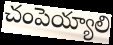
చంపెయ్యాలి